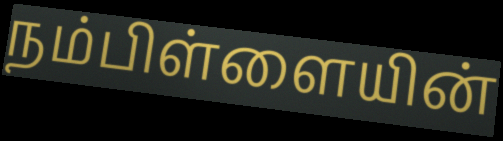
நம்பிள்ளையின்